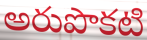
అరుపొకటి